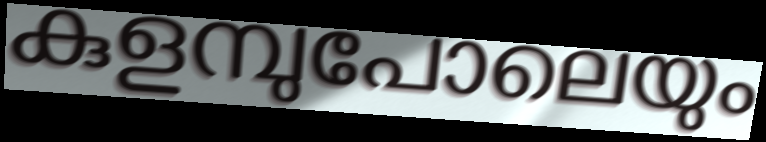
കുളമ്പുപോലെയും